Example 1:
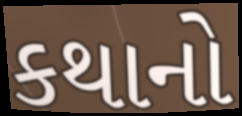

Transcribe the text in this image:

કથાનો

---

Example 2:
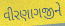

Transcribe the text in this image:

વીરણાગજીને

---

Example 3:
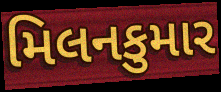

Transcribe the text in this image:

મિલનકુમાર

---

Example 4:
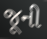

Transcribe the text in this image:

જૂની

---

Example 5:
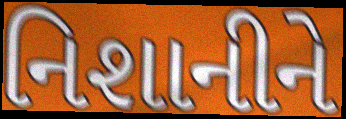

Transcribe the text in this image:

નિશાનીને